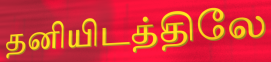
தனியிடத்திலே